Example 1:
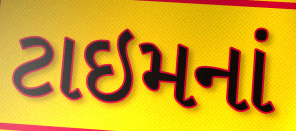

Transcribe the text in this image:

ટાઇમનાં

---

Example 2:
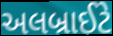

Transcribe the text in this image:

અલબ્રાઈટે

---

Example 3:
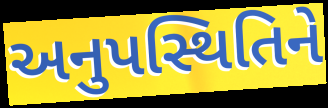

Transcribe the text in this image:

અનુપસ્થિતિને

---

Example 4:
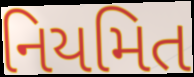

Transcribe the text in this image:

નિયમિત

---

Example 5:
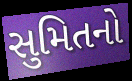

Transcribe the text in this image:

સુમિતનો